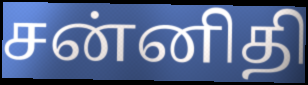
சன்னிதி